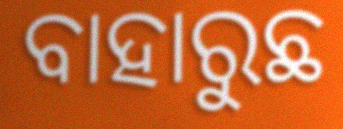
ବାହାରୁଛ